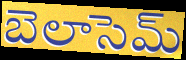
బెలాసెమ్